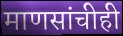
माणसांचीही